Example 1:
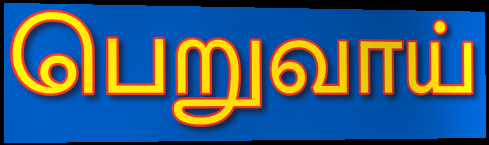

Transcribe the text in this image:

பெறுவாய்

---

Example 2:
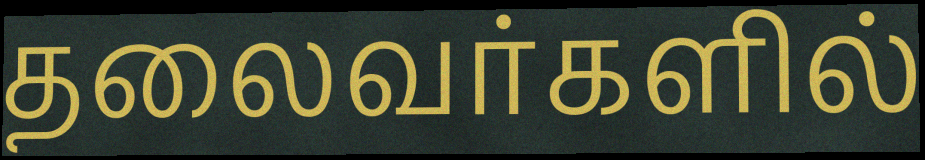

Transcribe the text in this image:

தலைவர்களில்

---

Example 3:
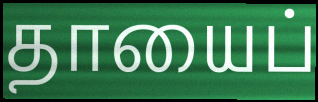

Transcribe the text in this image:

தாயைப்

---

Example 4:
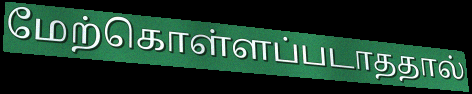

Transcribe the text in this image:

மேற்கொள்ளப்படாததால்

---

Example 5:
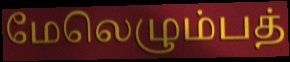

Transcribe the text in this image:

மேலெழும்பத்